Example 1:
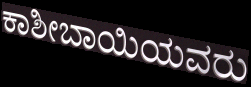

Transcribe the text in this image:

ಕಾಶೀಬಾಯಿಯವರು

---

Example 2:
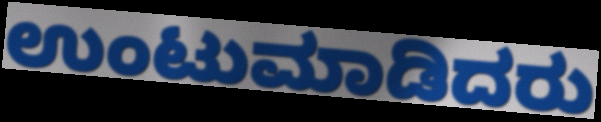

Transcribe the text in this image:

ಉಂಟುಮಾಡಿದರು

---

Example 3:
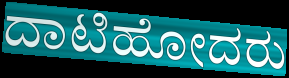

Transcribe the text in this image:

ದಾಟಿಹೋದರು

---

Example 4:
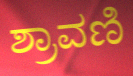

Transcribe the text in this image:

ಶ್ರಾವಣಿ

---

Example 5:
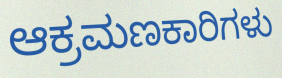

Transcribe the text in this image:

ಆಕ್ರಮಣಕಾರಿಗಳು